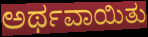
ಅರ್ಥವಾಯಿತು